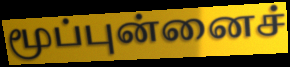
மூப்புன்னைச்